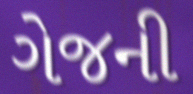
ગેજની